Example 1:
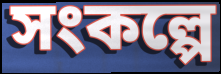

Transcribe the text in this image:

সংকল্পে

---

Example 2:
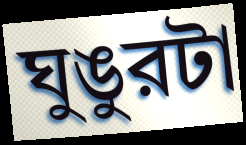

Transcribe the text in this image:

ঘুঙুরটা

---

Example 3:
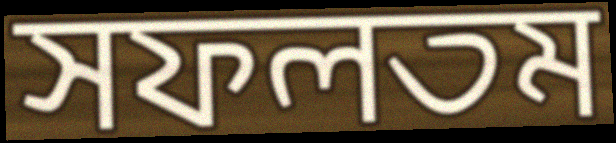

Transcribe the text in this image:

সফলতম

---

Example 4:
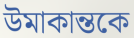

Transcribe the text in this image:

উমাকান্তকে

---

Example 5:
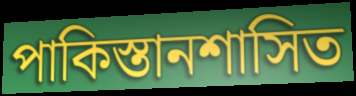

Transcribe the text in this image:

পাকিস্তানশাসিত